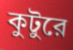
কুটুরে